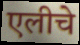
एलीचे